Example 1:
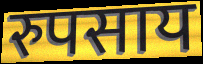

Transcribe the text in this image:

रुपसाय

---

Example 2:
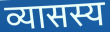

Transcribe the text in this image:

व्यासस्य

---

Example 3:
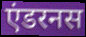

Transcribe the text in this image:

एंडरनस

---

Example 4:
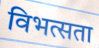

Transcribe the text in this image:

विभत्सता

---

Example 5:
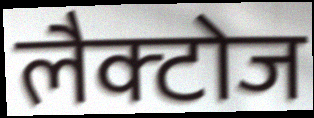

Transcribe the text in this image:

लैक्‍टोज